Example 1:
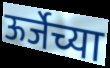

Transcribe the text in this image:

ऊर्जेच्या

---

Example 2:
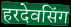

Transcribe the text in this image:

हरदेवसिंग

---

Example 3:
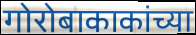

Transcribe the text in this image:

गोरोबाकाकांच्या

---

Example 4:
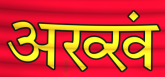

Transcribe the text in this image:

अख्खं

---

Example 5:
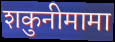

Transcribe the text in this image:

शकुनीमामा